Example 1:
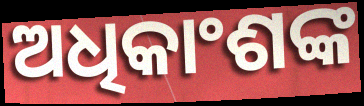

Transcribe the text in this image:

ଅଧିକାଂଶଙ୍କ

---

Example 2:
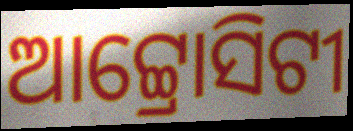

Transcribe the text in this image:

ଆଟ୍ଟ୍ରୋସିଟୀ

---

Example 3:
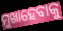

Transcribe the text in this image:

ମୁଖାହେବାକୁ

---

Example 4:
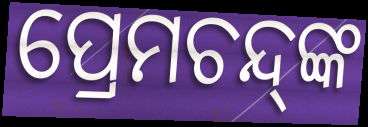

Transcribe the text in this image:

ପ୍ରେମଚନ୍ଦ୍‌ଙ୍କ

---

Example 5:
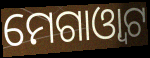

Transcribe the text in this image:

ମେଗାଓ୍ୱାଟ